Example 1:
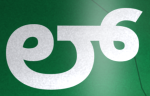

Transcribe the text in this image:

ಲ್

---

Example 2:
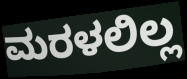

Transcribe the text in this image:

ಮರಳಲಿಲ್ಲ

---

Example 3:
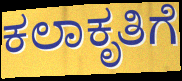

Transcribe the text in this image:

ಕಲಾಕೃತಿಗೆ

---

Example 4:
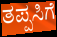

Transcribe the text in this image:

ತಪ್ಪಸಿಗೆ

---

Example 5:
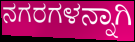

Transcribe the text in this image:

ನಗರಗಳನ್ನಾಗಿ